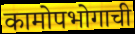
कामोपभोगाची